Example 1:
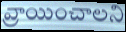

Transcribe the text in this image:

వ్రాయించాలని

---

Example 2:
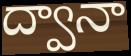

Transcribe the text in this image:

ద్వానా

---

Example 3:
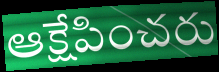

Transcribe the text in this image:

ఆక్షేపించరు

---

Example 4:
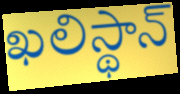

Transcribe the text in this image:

ఖలిస్థాన్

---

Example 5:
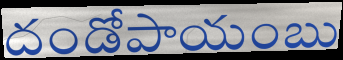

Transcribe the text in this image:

దండోపాయంబు